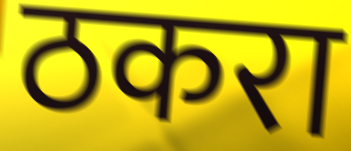
ठकरा